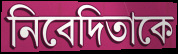
নিবেদিতাকে